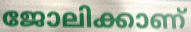
ജോലിക്കാണ്